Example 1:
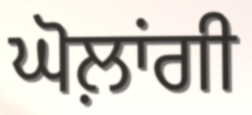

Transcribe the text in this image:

ਘੋਲ਼ਾਂਗੀ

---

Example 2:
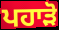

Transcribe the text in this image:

ਪਹਾੜੋ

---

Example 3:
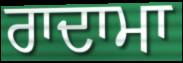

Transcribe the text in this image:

ਰਾਦਾਮਾ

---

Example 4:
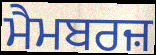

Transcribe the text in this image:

ਮੈਮਬਰਜ਼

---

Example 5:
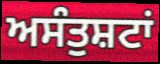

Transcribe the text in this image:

ਅਸੰਤੁਸ਼ਟਾਂ